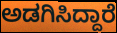
ಅಡಗಿಸಿದ್ದಾರೆ